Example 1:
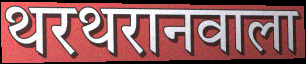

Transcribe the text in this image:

थरथरानवाला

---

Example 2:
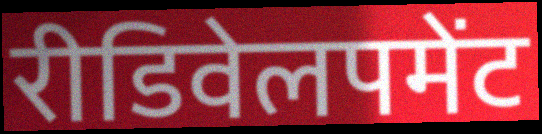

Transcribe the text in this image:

रीडिवेलपमेंट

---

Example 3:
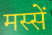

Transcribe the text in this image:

मस्सें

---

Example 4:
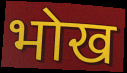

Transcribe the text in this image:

भोख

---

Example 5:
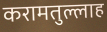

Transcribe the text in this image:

करामतुल्लाह